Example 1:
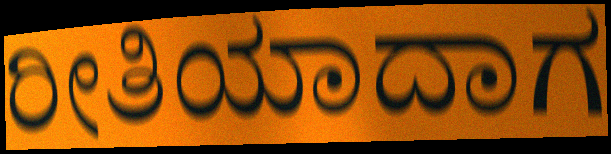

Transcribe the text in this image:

ರೀತಿಯಾದಾಗ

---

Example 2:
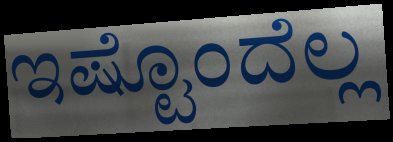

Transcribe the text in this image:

ಇಷ್ಟೊಂದೆಲ್ಲ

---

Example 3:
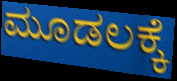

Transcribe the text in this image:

ಮೂಡಲಕ್ಕೆ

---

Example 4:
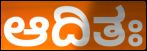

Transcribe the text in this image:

ಆದಿತಃ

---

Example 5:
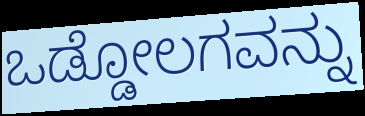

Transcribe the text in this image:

ಒಡ್ಡೋಲಗವನ್ನು